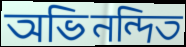
অভিনন্দিত